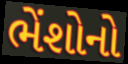
ભેંશોનો